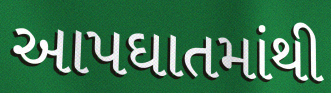
આપઘાતમાંથી